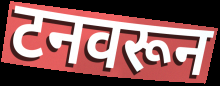
टनवरून